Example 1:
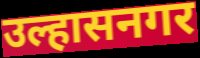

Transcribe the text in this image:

उल्हासनगर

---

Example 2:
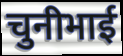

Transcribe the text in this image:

चुनीभाई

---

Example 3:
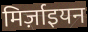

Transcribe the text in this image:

मिर्ज़ाइयन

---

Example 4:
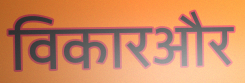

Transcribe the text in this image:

विकारऔर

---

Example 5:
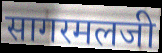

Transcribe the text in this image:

सागरमलजी